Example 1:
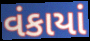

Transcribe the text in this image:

વંકાયાં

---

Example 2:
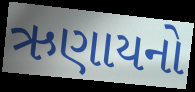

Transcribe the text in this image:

ઋણાયનો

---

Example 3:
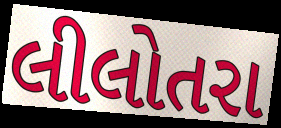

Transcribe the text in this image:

લીલોતરા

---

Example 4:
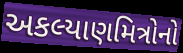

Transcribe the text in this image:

અકલ્યાણમિત્રોનો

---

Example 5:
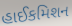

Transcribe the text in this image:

હાઈકમિશન